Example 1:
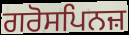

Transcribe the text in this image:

ਗਰੋਸਪਿਨਜ਼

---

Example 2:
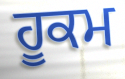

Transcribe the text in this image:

ਹੂਕਮ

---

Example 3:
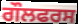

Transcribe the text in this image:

ਗੌਲਫਰਸ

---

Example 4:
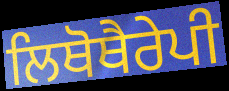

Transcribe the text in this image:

ਲਿਥੋਥੈਰੇਪੀ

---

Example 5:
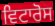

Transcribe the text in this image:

ਵਿਟਾਰੋਸ